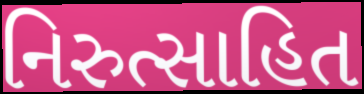
નિરુત્સાહિત